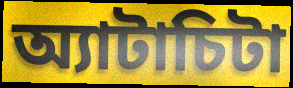
অ্যাটাচিটা